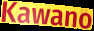
Kawano